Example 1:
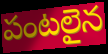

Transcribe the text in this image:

పంటలైన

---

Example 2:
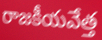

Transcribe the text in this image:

రాజకీయవేత్త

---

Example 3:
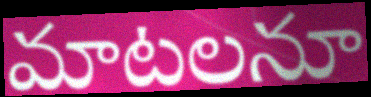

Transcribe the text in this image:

మాటలనూ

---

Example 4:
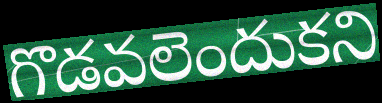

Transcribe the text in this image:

గొడవలెందుకని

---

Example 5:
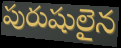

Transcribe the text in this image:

పురుషులైన